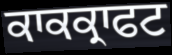
ਕਾਕਕ੍ਰਾਫਟ